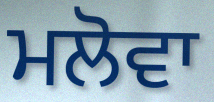
ਮਲੋਵਾ